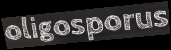
oligosporus